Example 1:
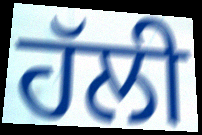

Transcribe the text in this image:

ਹੱਲੀ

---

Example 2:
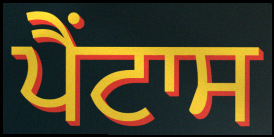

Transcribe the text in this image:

ਪੈਂਟਾਸ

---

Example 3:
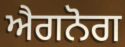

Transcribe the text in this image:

ਐਗਨੋਗ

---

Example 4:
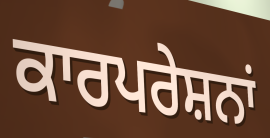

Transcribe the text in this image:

ਕਾਰਪਰੇਸ਼ਨਾਂ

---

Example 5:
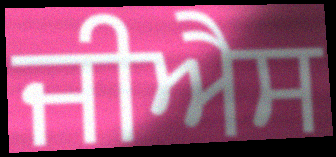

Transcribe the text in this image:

ਜੀਐਸ